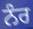
ਨੰਰ